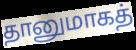
தானுமாகத்